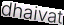
dhaivat